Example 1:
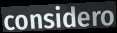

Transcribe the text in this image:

considero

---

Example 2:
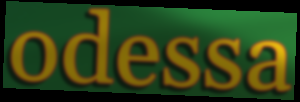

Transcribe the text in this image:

odessa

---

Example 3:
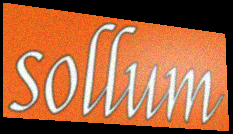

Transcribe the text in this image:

sollum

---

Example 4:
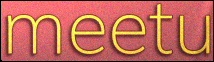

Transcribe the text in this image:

meetu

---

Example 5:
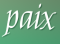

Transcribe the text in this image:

paix